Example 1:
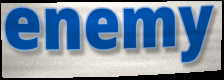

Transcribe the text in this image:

enemy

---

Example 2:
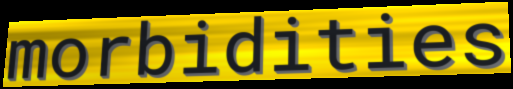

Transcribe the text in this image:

morbidities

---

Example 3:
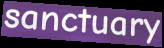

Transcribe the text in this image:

sanctuary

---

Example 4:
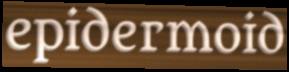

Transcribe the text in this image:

epidermoid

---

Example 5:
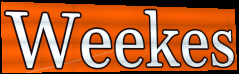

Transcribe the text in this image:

Weekes